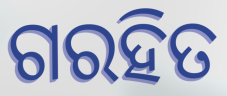
ଗରହିତ